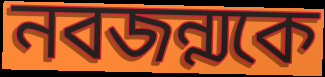
নবজন্মকে